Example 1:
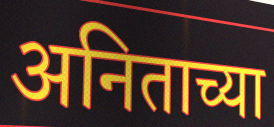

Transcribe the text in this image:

अनिताच्या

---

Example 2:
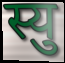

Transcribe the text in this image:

स्यु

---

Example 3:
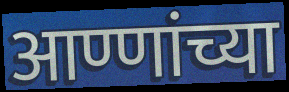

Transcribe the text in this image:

आण्णांच्या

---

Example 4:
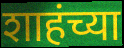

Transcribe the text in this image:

शाहंच्या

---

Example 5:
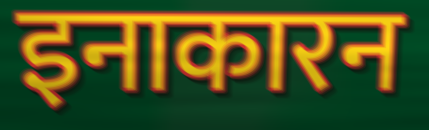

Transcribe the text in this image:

इनाकारन